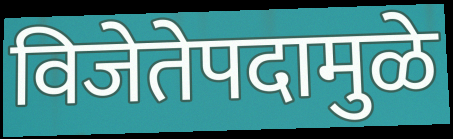
विजेतेपदामुळे